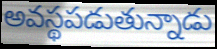
అవస్థపడుతున్నాడు